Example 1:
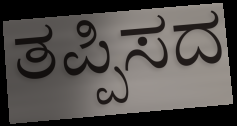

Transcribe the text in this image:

ತಪ್ಪಿಸದ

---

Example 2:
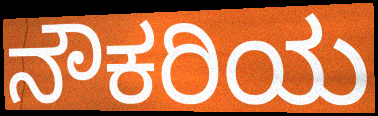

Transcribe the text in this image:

ನೌಕರಿಯ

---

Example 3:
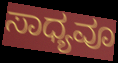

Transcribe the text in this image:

ಸಾಧ್ಯವೂ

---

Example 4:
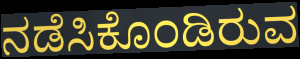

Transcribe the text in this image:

ನಡೆಸಿಕೊಂಡಿರುವ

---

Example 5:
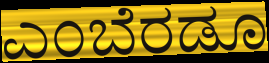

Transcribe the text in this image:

ಎಂಬೆರಡೂ